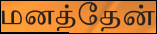
மனத்தேன்